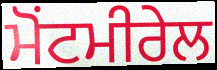
ਮੋਂਟਮੀਰੇਲ